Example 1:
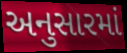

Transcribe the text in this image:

અનુસારમાં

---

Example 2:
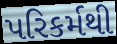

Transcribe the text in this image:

પરિકર્મથી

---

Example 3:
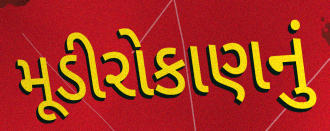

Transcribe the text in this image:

મૂડીરોકાણનું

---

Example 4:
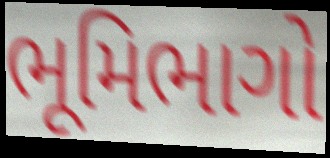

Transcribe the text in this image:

ભૂમિભાગો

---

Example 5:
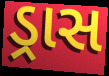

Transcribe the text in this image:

ડ્રાસ